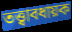
তত্ত্বাবধায়ক